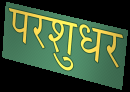
परशुधर